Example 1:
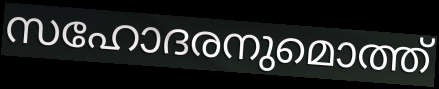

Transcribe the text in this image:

സഹോദരനുമൊത്ത്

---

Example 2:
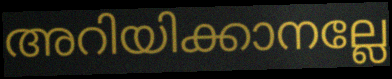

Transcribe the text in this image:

അറിയിക്കാനല്ലേ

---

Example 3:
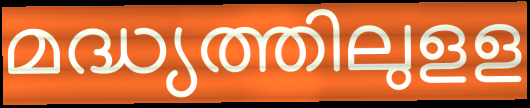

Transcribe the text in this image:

മദ്ധ്യത്തിലുളള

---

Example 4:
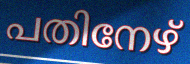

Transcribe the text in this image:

പതിനേഴ്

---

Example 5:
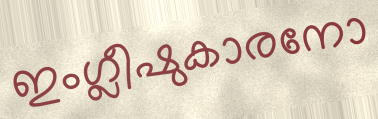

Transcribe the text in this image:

ഇംഗ്ലീഷുകാരനോ